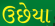
ઉછેયા